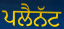
ਪਲੈਨੱਟ